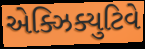
એક્ઝિક્યુટિવે